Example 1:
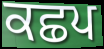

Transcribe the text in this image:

ਕਛਪ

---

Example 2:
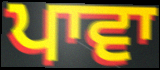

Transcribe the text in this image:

ਪਾਵਾ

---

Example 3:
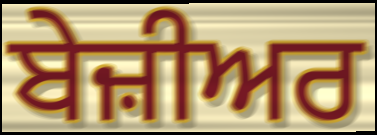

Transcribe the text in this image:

ਬੇਜ਼ੀਅਰ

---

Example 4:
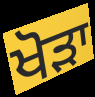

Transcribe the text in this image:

ਖੋੜਾ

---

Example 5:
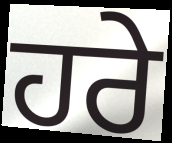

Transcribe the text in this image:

ਹਰੇ